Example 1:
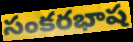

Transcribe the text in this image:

సంకరభాష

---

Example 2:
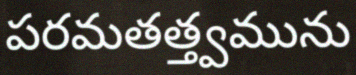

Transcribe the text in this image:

పరమతత్త్వమును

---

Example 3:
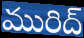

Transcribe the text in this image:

మురిద్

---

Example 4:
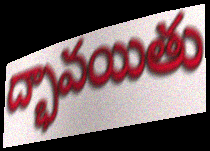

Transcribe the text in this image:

ద్భావయితు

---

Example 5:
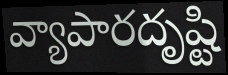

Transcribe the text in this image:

వ్యాపారదృష్టి